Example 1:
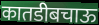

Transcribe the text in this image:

कातडीबचाऊ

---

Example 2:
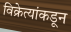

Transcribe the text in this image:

विक्रेत्यांकडून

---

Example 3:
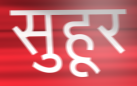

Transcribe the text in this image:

सुहूर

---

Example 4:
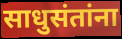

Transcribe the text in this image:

साधुसंतांना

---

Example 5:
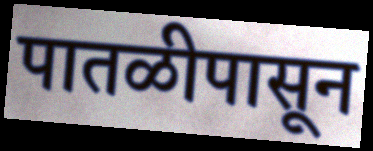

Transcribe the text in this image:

पातळीपासून